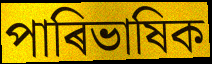
পাৰিভাষিক